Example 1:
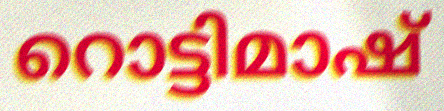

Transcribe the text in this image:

റൊട്ടിമാഷ്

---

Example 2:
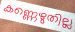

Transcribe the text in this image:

കണ്ണെഴുതില്ല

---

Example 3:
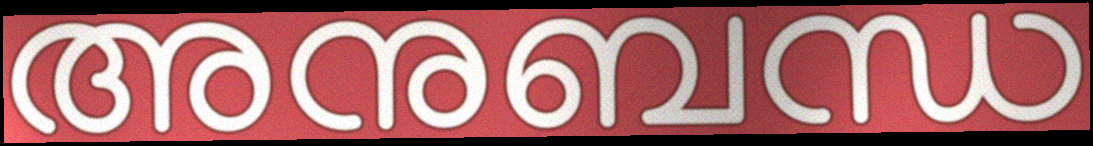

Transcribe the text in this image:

അനുബന്ധ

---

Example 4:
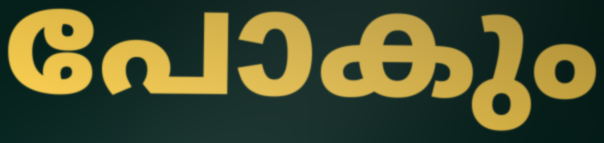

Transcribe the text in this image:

പോകും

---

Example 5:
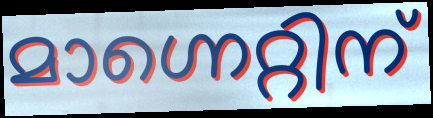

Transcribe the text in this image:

മാഗ്നെറ്റിന്